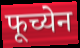
फूच्येन